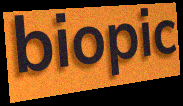
biopic